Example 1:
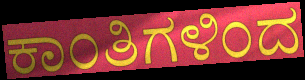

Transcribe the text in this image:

ಕಾಂತಿಗಳಿಂದ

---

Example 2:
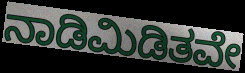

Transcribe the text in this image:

ನಾಡಿಮಿಡಿತವೇ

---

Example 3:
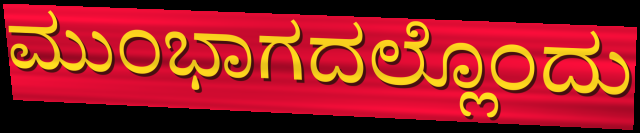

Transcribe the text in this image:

ಮುಂಭಾಗದಲ್ಲೊಂದು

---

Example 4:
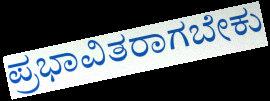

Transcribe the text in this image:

ಪ್ರಭಾವಿತರಾಗಬೇಕು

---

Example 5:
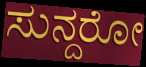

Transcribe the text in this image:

ಸುನ್ದರೋ